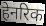
हेनरिक